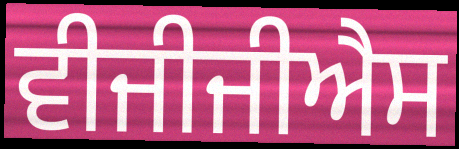
ਵੀਜੀਜੀਐਸ